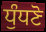
ਧੁੰਧਣੋ